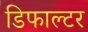
डिफाल्टर